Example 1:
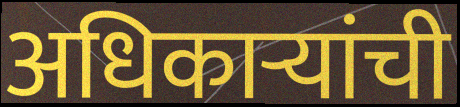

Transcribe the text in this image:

अधिकार्‍यांची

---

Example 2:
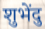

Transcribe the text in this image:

शुभेंदु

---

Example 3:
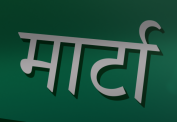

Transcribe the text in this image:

मार्टा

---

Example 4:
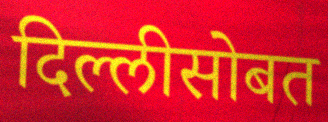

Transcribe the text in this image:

दिल्लीसोबत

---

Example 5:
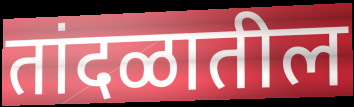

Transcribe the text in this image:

तांदळातील